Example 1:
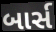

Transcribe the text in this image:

બાર્સ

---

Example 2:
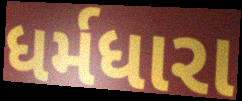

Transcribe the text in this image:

ધર્મધારા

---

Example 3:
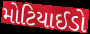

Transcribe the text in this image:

મોટિયાઈડો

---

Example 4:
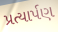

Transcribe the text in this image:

પ્રત્યાર્પણ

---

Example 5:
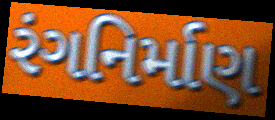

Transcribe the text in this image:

રંગનિર્માણ